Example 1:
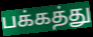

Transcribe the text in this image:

பக்கத்து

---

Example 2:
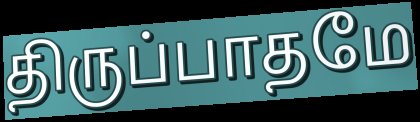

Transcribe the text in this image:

திருப்பாதமே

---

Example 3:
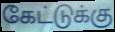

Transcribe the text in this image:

கேட்டுக்கு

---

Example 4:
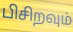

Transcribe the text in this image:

பிசிறவும்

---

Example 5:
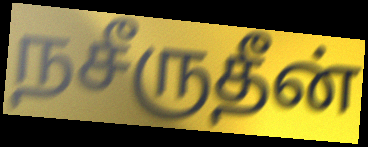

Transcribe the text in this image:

நசீருதீன்